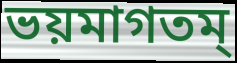
ভয়মাগতম্